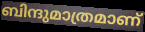
ബിന്ദുമാത്രമാണ്